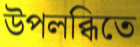
উপলব্ধিতে